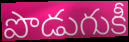
పొడుగుకీ